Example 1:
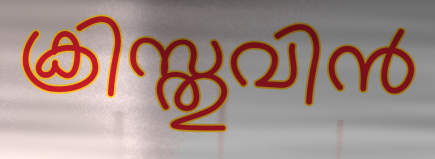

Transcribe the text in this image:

ക്രിസ്തുവിൻ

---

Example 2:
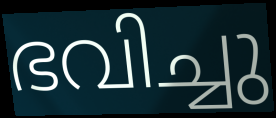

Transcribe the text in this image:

ഭവിച്ചു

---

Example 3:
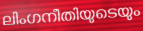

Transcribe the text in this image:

ലിംഗനീതിയുടെയും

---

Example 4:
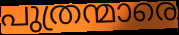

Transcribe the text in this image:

പുത്രന്മാരെ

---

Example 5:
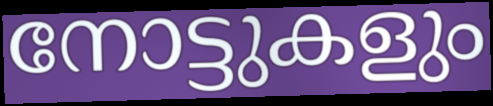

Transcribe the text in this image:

നോട്ടുകളും